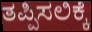
ತಪ್ಪಿಸಲಿಕ್ಕೆ